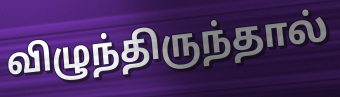
விழுந்திருந்தால்